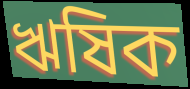
ঋষিক